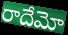
రాదేమో